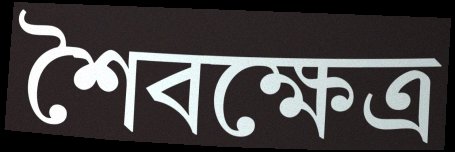
শৈবক্ষেত্র